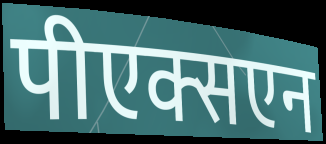
पीएक्सएन